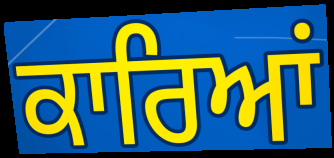
ਕਾਰਿਆਂ